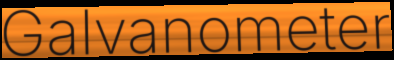
Galvanometer